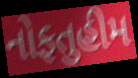
નોફતુહીમ